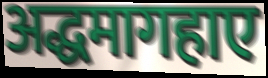
अद्धमागहाए